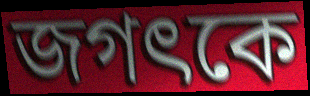
জগৎকে